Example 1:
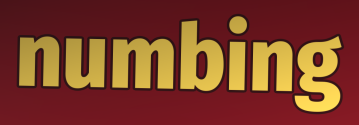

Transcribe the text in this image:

numbing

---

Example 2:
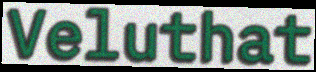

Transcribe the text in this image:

Veluthat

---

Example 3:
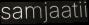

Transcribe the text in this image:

samjaatii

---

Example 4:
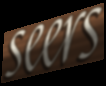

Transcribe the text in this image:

seers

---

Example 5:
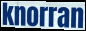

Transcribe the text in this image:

knorran